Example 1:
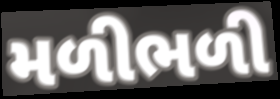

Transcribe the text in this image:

મળીભળી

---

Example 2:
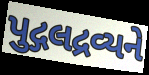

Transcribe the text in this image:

પુદ્ગલદ્રવ્યને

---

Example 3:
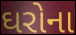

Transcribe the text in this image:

ઘરોના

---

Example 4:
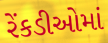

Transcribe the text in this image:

રેંકડીઓમાં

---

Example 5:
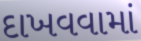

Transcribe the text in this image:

દાખવવામાં